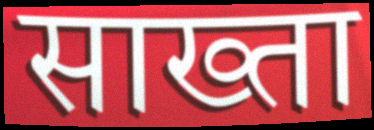
साख्ता